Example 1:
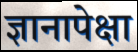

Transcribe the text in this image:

ज्ञानापेक्षा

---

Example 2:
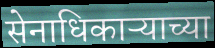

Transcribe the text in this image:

सेनाधिकाऱ्याच्या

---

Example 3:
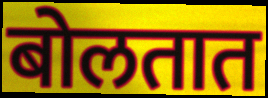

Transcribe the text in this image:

बोलतात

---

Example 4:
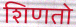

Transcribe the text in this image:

शिणतो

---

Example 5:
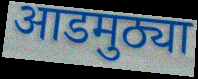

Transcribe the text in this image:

आडमुठ्या